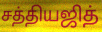
சத்தியஜித்